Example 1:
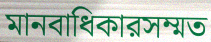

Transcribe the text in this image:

মানবাধিকারসম্মত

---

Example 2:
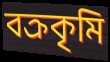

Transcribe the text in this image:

বক্রকৃমি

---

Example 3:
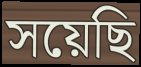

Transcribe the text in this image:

সয়েছি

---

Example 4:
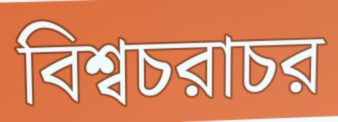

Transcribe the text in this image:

বিশ্বচরাচর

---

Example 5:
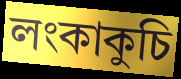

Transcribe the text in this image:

লংকাকুচি